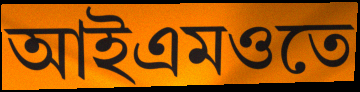
আইএমওতে